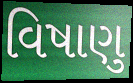
વિષાણુ